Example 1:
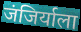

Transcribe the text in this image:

जंजिर्याला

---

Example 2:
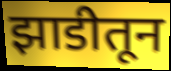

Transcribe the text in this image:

झाडीतून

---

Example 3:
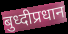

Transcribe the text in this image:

बुध्दीप्रधान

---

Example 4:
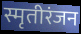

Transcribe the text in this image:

स्मृतीरंजन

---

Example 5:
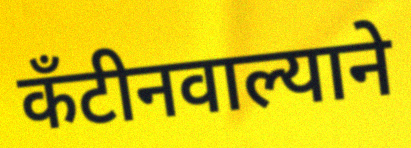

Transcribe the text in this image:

कँटीनवाल्याने